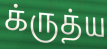
க்ருத்ய